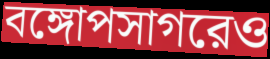
বঙ্গোপসাগরেও